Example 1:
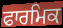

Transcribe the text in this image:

ਫਾਰਮਿਕ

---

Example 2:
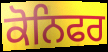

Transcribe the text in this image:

ਕੋਨਿਫਰ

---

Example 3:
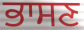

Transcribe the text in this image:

ਭਾਸਣ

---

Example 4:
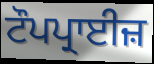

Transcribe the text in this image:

ਟੌਪਪ੍ਰਾਈਜ਼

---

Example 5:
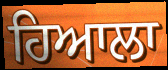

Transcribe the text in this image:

ਹਿਆਲਾ